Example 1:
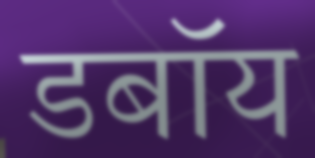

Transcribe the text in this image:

डबॉय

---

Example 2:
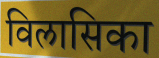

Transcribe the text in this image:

विलासिका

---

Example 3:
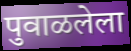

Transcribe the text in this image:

पुवाळलेला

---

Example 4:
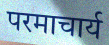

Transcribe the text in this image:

परमाचार्य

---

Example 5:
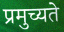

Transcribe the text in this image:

प्रमुच्यते